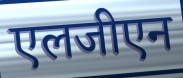
एलजीएन